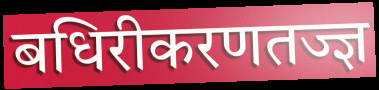
बधिरीकरणतज्ज्ञ